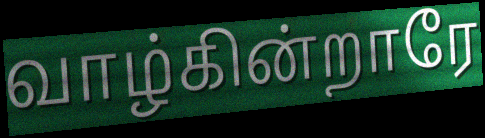
வாழ்கின்றாரே